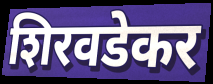
शिरवडेकर